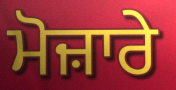
ਮੋਜ਼ਾਰੇ